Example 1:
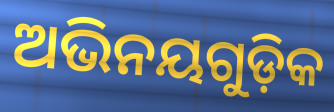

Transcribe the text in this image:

ଅଭିନୟଗୁଡ଼ିକ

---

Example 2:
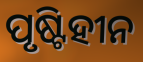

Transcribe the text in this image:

ପୃଷ୍ଟିହୀନ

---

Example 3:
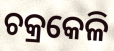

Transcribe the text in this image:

ଚକ୍ରକେଳି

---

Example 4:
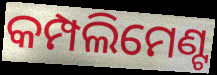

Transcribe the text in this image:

କମ୍ପଲିମେଣ୍ଟ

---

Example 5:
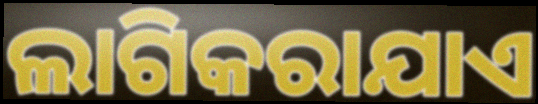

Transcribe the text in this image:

ଲାଗିକରାଯାଏ